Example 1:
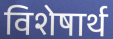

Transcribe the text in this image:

विशेषार्थ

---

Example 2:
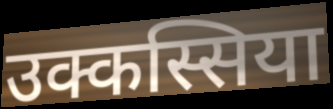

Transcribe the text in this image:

उक्कस्सिया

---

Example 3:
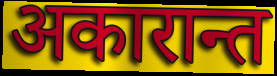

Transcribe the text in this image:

अकारान्त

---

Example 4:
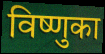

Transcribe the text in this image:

विष्णुका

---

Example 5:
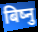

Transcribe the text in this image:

बिष्नु